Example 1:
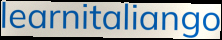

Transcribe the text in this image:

learnitaliango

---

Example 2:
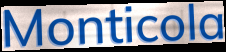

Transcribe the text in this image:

Monticola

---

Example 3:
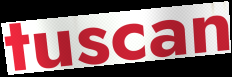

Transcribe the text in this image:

tuscan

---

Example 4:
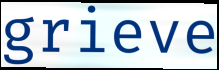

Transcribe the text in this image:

grieve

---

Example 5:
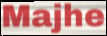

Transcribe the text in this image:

Majhe